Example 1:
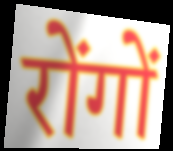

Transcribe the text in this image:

रोंगों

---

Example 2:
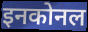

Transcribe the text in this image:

इनकोनल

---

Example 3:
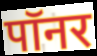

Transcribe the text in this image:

पॉनर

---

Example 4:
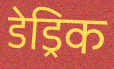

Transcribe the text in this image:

डेड्रिक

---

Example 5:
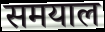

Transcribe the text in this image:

समयाल